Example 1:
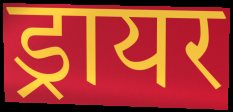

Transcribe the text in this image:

ड्रायर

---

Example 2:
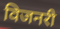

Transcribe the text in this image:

विजनरी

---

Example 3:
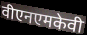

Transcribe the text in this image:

वीएनएमकेवी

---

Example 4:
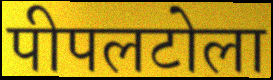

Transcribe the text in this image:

पीपलटोला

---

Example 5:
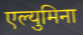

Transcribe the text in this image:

एल्युमिना